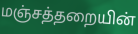
மஞ்சத்தறையின்